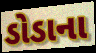
ડોડાના